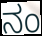
ನಂ